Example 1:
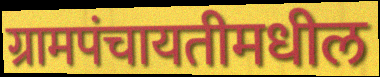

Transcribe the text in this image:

ग्रामपंचायतीमधील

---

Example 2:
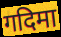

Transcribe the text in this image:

गदिमा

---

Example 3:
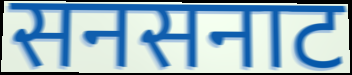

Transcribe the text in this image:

सनसनाट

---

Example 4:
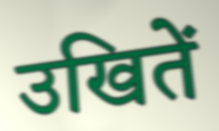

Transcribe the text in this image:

उखितें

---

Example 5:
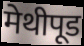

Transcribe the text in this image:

मेथीपूड